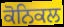
ਕੋਨਿਕਲ